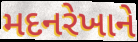
મદનરેખાને